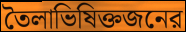
তৈলাভিষিক্তজনের